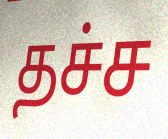
தச்ச